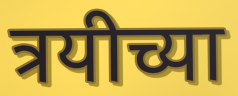
त्रयीच्या